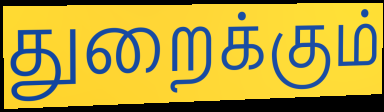
துறைக்கும்